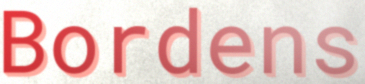
Bordens